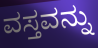
ವಸ್ತವನ್ನು